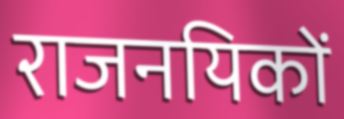
राजनयिकों